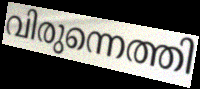
വിരുന്നെത്തി